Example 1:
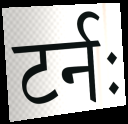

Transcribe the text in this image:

टर्नः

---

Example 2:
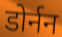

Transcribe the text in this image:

डोर्नन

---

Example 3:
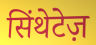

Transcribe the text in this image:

सिंथेटेज़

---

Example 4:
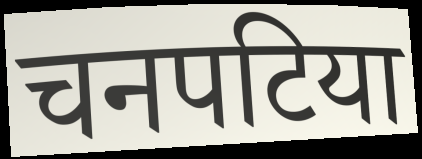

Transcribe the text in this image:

चनपटिया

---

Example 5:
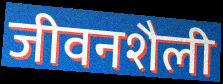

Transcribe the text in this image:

जीवनशैली